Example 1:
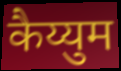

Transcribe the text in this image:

कैय्युम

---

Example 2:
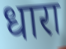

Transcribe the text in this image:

धारा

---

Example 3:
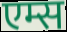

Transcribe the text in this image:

एम्स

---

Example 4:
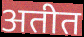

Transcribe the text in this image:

अतीत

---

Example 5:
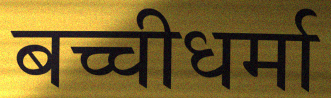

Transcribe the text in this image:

बच्चीधर्मा